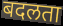
बदलता